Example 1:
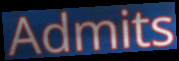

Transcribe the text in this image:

Admits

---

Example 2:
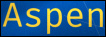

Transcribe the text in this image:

Aspen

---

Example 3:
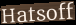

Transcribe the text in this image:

Hatsoff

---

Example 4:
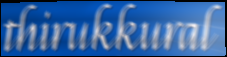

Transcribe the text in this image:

thirukkural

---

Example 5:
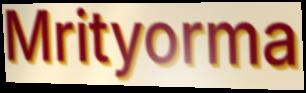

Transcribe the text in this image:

Mrityorma